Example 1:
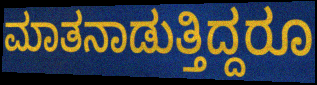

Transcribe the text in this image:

ಮಾತನಾಡುತ್ತಿದ್ದರೂ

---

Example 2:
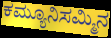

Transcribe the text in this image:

ಕಮ್ಯೂನಿಸಮ್ಮಿನ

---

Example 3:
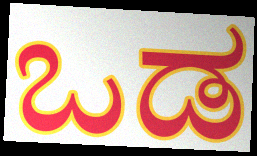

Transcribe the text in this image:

ಒಡ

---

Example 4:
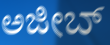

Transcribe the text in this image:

ಅಜೀಬ್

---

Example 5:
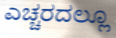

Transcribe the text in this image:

ಎಚ್ಚರದಲ್ಲೂ